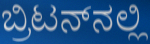
ಬ್ರಿಟನ್‌ನಲ್ಲಿ